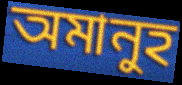
অমানুহ